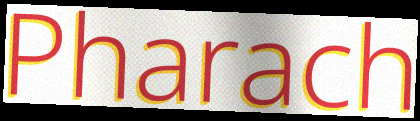
Pharach